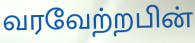
வரவேற்றபின்